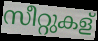
സീറ്റുകള്